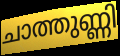
ചാത്തുണ്ണി